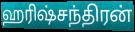
ஹரிஷ்சந்திரன்